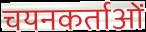
चयनकर्ताओं